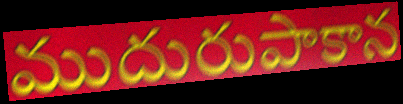
ముదురుపాకాన